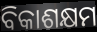
ବିକାଶକ୍ଷମ